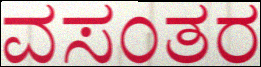
ವಸಂತರ